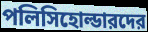
পলিসিহোল্ডারদের